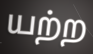
யற்ற